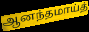
ஆனந்தமாய்த்